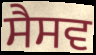
ਸੈਸਵ